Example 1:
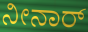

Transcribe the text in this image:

ನೀನಾರ್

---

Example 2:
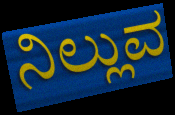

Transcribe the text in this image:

ನಿಲ್ಲುವ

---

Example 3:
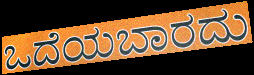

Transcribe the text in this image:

ಒದೆಯಬಾರದು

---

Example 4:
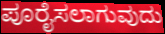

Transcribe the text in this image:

ಪೂರೈಸಲಾಗುವುದು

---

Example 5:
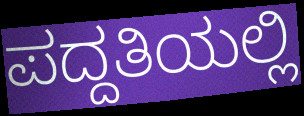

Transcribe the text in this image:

ಪದ್ದತಿಯಲ್ಲಿ